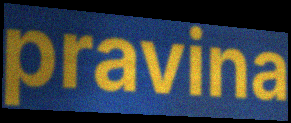
pravina